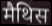
मैथिस